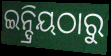
ଇନ୍ଦ୍ରିୟଠାରୁ